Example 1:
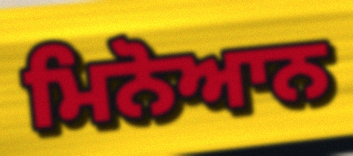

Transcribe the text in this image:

ਮਿਨੋਆਨ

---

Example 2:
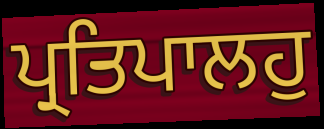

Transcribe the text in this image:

ਪ੍ਰਤਿਪਾਲਹੁ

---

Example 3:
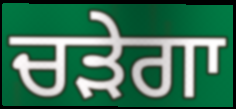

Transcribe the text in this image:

ਚੜੇਗਾ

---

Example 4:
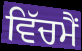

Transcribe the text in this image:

ਵਿੱਚਮੈਂ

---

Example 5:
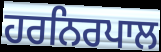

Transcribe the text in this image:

ਹਰਨਿਰਪਾਲ